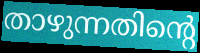
താഴുന്നതിന്റെ